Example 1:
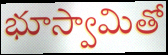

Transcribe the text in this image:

భూస్వామితో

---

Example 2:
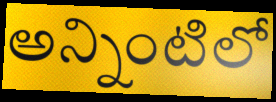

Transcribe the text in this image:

అన్నింటిలో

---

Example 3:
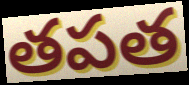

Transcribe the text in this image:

తపత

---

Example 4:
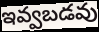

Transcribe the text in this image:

ఇవ్వబడవు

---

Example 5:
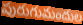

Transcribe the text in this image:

పురుగుమందుల